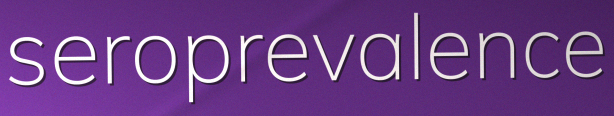
seroprevalence